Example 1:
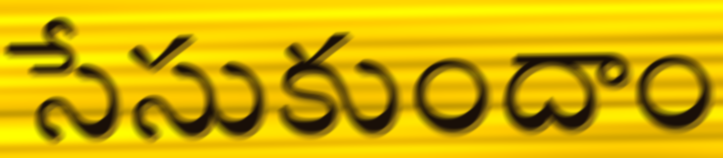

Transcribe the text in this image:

సేసుకుందాం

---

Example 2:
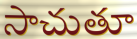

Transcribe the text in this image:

సాచుతూ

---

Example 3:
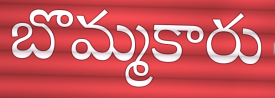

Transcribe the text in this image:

బొమ్మకారు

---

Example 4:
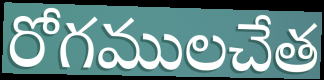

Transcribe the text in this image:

రోగములచేత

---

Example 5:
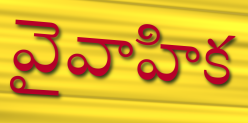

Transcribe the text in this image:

వైవాహిక